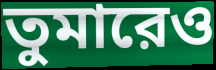
তুমারেও